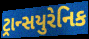
ટ્રાન્સયુરેનિક